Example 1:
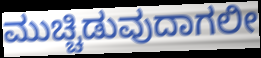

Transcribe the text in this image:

ಮುಚ್ಚಿಡುವುದಾಗಲೀ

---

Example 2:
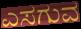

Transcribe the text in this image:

ಎಸಗುವ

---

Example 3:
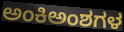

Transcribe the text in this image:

ಅಂಕಿಅಂಶಗಳ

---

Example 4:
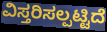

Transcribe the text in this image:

ವಿಸ್ತರಿಸಲ್ಪಟ್ಟಿದೆ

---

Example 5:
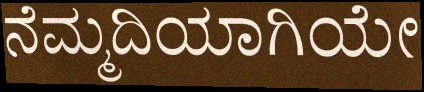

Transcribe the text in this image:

ನೆಮ್ಮದಿಯಾಗಿಯೇ